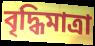
বৃদ্ধিমাত্রা